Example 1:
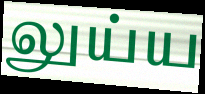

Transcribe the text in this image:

லுய்ய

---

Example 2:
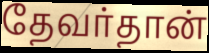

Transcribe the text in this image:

தேவர்தான்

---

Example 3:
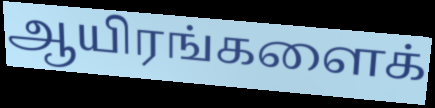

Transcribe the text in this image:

ஆயிரங்களைக்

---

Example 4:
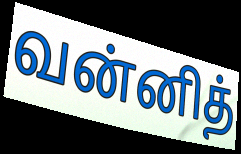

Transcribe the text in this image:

வன்னித்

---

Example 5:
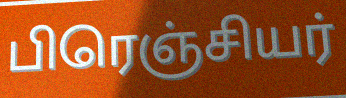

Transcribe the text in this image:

பிரெஞ்சியர்